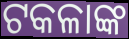
ଟକଳାଙ୍କ